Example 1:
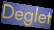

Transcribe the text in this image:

Deglet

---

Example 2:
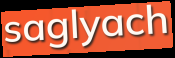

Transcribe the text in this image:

saglyach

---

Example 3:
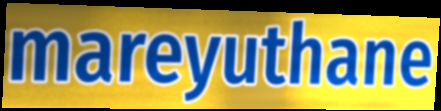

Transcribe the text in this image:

mareyuthane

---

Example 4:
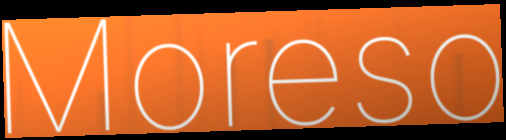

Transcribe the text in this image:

Moreso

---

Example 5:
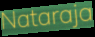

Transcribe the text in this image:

Nataraja